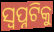
ସ୍ୱପ୍ନଟିକୁ